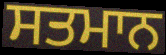
ਸਤਮਾਨ